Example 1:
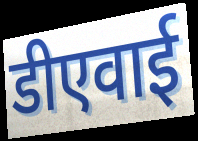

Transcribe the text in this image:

डीएवाई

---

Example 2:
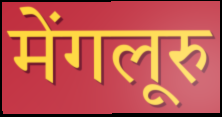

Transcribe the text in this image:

मेंगलूरु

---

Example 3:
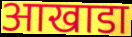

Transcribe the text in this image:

आखाडा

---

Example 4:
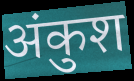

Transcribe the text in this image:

अंकुश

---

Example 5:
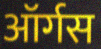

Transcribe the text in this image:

ऑर्गस